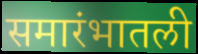
समारंभातली